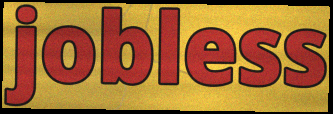
jobless